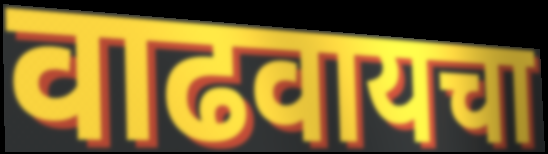
वाढवायचा